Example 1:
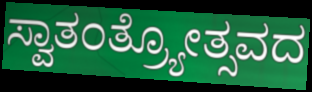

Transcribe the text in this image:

ಸ್ವಾತಂತ್ರ್ಯೋತ್ಸವದ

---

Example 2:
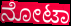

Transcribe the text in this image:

ನೋಟಾ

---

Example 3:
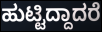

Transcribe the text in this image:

ಹುಟ್ಟಿದ್ದಾದರೆ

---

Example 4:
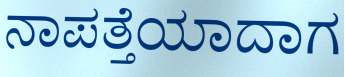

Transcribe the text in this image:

ನಾಪತ್ತೆಯಾದಾಗ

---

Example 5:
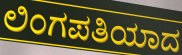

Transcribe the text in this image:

ಲಿಂಗಪತಿಯಾದ